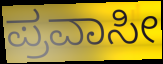
ಪ್ರವಾಸೀ